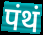
पंथं